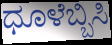
ಧೂಳೆಬ್ಬಿಸಿ